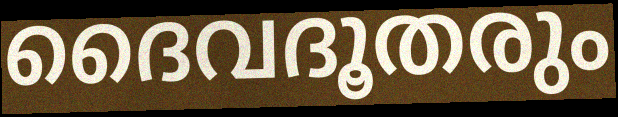
ദൈവദൂതരും